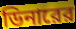
ডিনারের